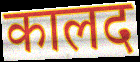
कालद